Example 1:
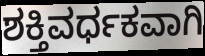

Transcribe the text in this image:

ಶಕ್ತಿವರ್ಧಕವಾಗಿ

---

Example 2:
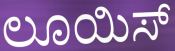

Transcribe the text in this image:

ಲೂಯಿಸ್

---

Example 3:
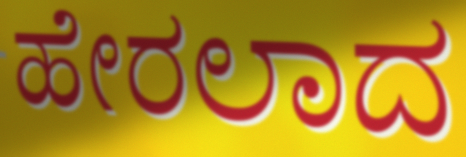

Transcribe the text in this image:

ಹೇರಲಾದ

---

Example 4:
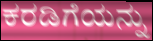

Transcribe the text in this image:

ಕರಡಿಗೆಯನ್ನು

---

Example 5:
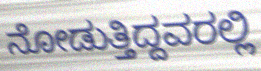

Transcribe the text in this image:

ನೋಡುತ್ತಿದ್ದವರಲ್ಲಿ